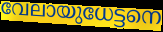
വേലായുധേട്ടനെ